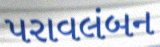
પરાવલંબન